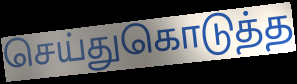
செய்துகொடுத்த